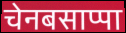
चेनबसाप्पा